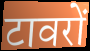
टावरों